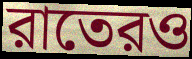
রাতেরও